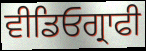
ਵੀਡਿਓਗ੍ਰਾਫੀ